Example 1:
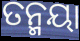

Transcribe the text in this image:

ତନ୍ମୟା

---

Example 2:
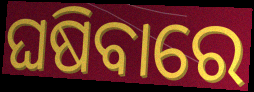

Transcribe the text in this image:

ଘଷିବାରେ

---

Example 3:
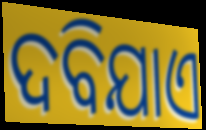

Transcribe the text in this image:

ଦବିଯାଏ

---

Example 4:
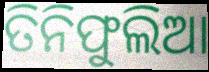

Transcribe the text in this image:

ତିନିଫୁଲିଆ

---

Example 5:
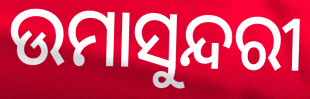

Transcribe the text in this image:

ଉମାସୁନ୍ଦରୀ